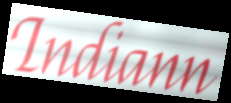
Indiann